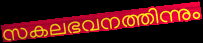
സകലഭവനത്തിന്നും